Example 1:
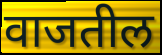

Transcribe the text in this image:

वाजतील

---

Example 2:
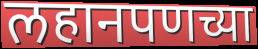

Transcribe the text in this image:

लहानपणच्या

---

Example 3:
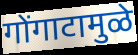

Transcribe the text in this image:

गोंगाटामुळे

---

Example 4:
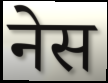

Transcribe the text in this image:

नेस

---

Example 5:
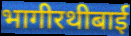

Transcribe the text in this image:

भागीरथीबाई